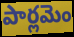
పార్లమెం